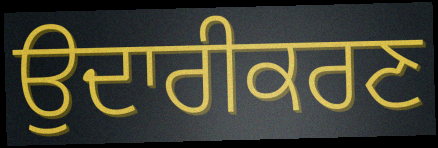
ਉਦਾਰੀਕਰਣ